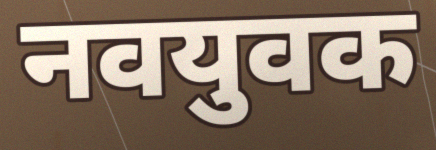
नवयुवक